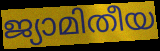
ജ്യാമിതീയ